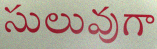
సులువుగా